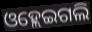
ଓହ୍ଲେଇଗଲି